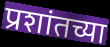
प्रशांतच्या